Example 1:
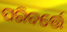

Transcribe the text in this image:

ପରିବର୍ତ୍ତେ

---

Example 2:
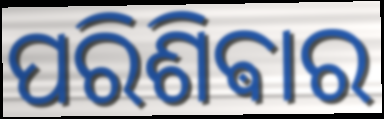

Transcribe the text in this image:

ପରିଶିଵାର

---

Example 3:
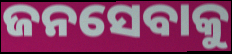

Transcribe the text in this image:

ଜନସେବାକୁ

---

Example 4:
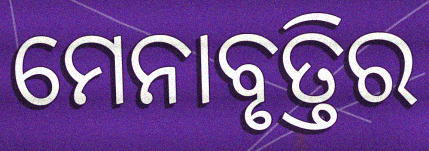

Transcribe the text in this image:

ମେନାବୃତ୍ତିର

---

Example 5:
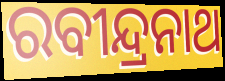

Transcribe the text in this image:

ରବୀନ୍ଦ୍ରନାଥ